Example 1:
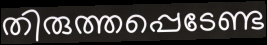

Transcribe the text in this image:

തിരുത്തപ്പെടേണ്ട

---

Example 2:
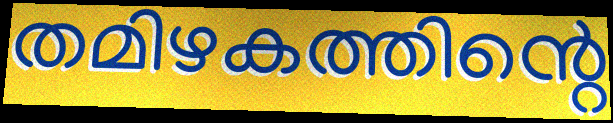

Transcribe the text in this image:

തമിഴകത്തിന്റെ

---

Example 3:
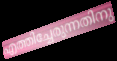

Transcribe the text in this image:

എത്തിച്ചേരുന്നതിനു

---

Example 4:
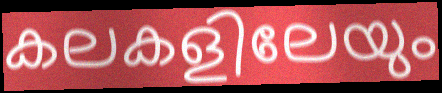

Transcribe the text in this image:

കലകളിലേയും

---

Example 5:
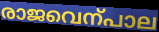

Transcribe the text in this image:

രാജവെന്പാല